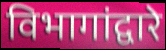
विभागांद्वारे